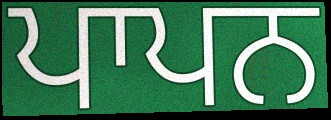
ਪਾਪਨ